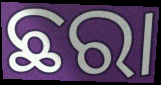
ଛରା